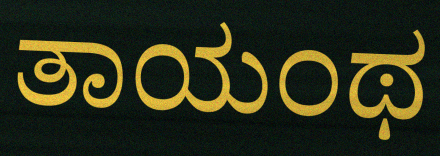
ತಾಯಂಥ